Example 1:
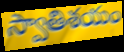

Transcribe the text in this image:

స్వాతిశయం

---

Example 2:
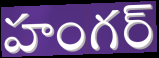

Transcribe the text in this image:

హంగర్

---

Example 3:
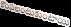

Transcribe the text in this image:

కొంపలంటుకుంటాయి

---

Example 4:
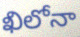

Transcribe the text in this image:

ఖిలోనా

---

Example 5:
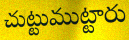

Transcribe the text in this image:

చుట్టుముట్టారు